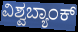
ವಿಶ್ವಬ್ಯಾಂಕ್